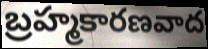
బ్రహ్మకారణవాద